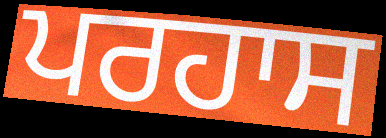
ਪਰਹਾਸ